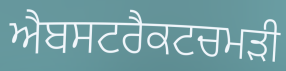
ਐਬਸਟਰੈਕਟਚਮੜੀ